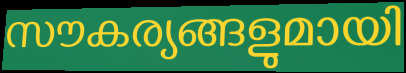
സൗകര്യങ്ങളുമായി